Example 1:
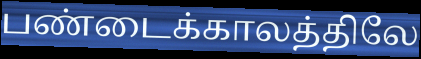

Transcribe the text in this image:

பண்டைக்காலத்திலே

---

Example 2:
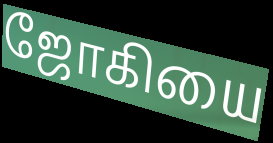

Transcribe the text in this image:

ஜோகியை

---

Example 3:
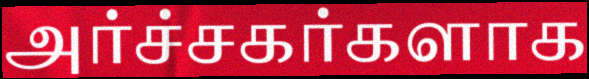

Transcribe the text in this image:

அர்ச்சகர்களாக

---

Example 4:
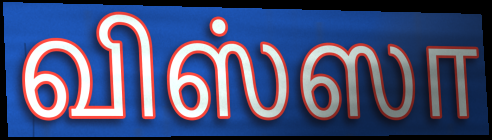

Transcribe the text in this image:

விஸ்ஸா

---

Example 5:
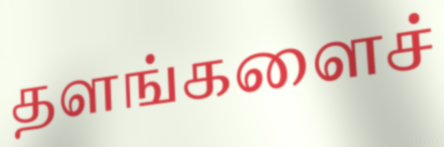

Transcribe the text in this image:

தளங்களைச்